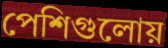
পেশিগুলোয়